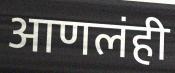
आणलंही